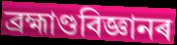
ব্ৰহ্মাণ্ডবিজ্ঞানৰ